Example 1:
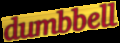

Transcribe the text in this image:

dumbbell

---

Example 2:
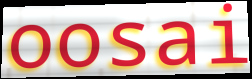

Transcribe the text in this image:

oosai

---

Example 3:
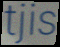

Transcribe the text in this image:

tjis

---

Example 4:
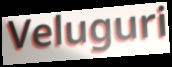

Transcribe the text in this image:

Veluguri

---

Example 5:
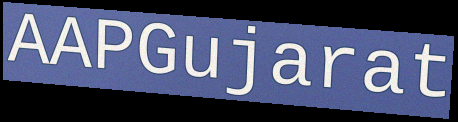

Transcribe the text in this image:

AAPGujarat